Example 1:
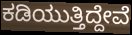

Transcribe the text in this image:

ಕಡಿಯುತ್ತಿದ್ದೇವೆ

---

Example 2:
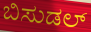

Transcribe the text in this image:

ಬಿಸುಡಲ್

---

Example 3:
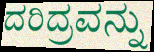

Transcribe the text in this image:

ದರಿದ್ರವನ್ನು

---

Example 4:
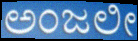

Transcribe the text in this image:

ಅಂಜಲೀ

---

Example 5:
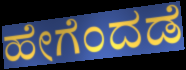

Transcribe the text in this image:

ಹೇಗೆಂದಡೆ